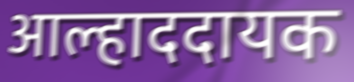
आल्हाददायक